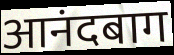
आनंदबाग